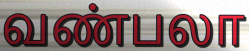
வண்பலா